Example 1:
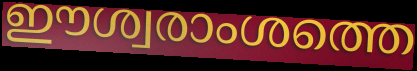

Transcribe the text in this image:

ഈശ്വരാംശത്തെ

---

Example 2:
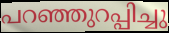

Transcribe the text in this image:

പറഞ്ഞുറപ്പിച്ചു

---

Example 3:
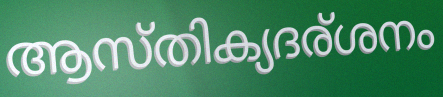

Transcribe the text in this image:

ആസ്തിക്യദര്ശനം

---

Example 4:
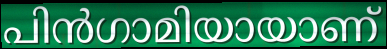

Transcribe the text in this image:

പിൻഗാമിയായാണ്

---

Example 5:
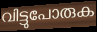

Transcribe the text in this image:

വിട്ടുപോരുക